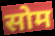
सोम